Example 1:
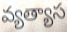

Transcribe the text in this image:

వ్యత్యాస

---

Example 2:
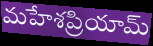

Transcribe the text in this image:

మహేశప్రియామ్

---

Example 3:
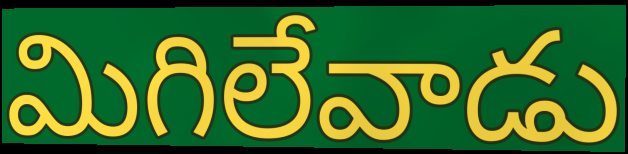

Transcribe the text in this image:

మిగిలేవాడు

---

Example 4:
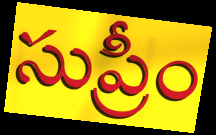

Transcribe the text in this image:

సుప్రీం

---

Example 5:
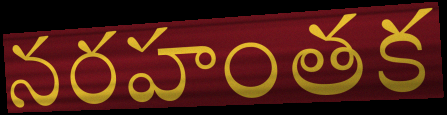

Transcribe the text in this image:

నరహంతక